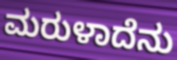
ಮರುಳಾದೆನು